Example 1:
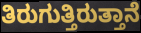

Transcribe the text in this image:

ತಿರುಗುತ್ತಿರುತ್ತಾನೆ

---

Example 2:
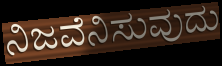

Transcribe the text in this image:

ನಿಜವೆನಿಸುವುದು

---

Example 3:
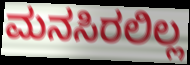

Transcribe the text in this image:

ಮನಸಿರಲಿಲ್ಲ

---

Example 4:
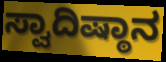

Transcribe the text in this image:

ಸ್ವಾದಿಷ್ಠಾನ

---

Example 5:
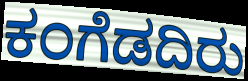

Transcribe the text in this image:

ಕಂಗೆಡದಿರು